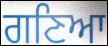
ਗਣਿਆ